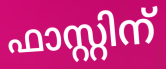
ഫാസ്റ്റിന്